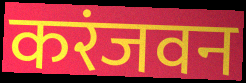
करंजवन